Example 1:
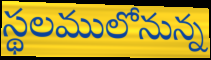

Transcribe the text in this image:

స్థలములోనున్న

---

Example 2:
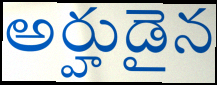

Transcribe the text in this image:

అర్హుడైన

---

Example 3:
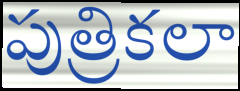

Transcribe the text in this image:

పుత్రికలా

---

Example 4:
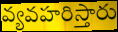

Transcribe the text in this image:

వ్యవహరిస్తారు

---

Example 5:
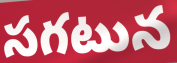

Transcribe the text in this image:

సగటున